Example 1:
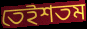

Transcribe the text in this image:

তেইশতম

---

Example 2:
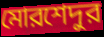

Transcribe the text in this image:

মোরশেদুর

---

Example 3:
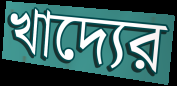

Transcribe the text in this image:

খাদ্যের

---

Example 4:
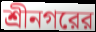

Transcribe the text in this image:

শ্রীনগরের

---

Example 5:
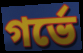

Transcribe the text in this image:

গর্ভে